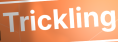
Trickling